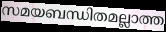
സമയബന്ധിതമല്ലാത്ത